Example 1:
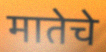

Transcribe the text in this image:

मातेचे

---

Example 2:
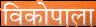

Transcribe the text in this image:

विकोपाला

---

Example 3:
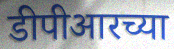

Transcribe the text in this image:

डीपीआरच्या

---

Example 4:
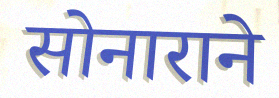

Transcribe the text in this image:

सोनाराने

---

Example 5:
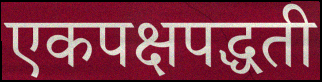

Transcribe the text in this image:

एकपक्षपद्धती